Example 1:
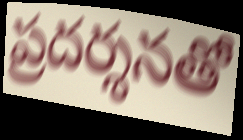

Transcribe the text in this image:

ప్రదర్శనతో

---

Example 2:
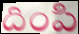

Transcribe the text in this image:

దింపి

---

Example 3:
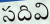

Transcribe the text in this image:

సదివి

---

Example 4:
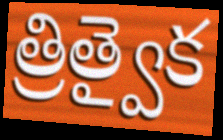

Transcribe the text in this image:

త్రిత్వైక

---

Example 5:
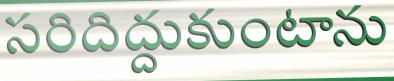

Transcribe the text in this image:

సరిదిద్దుకుంటాను